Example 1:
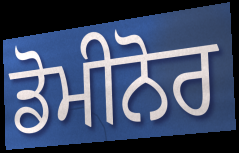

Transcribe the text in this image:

ਡੋਮੀਨੋਰ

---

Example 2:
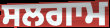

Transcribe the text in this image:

ਸਲਗਾਮ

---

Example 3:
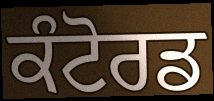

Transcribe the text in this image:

ਕੰਟੋਰਡ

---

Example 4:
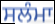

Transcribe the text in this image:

ਸਲੰਮਾ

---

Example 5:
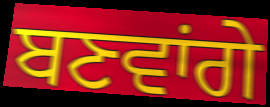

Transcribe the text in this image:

ਬਣਵਾਂਗੇ